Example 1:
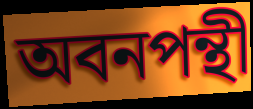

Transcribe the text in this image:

অবনপন্থী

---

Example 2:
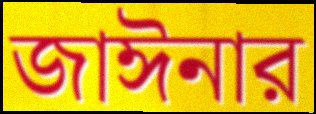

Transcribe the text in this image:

জাঈনার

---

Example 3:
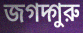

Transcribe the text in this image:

জগদ্গুরু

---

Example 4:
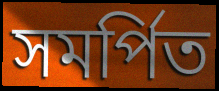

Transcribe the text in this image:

সমর্পিত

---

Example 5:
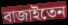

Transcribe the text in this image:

বাজাইতেন